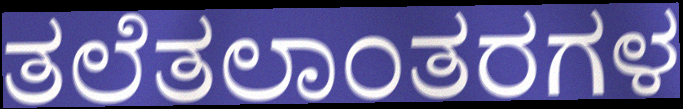
ತಲೆತಲಾಂತರಗಳ